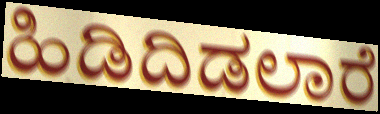
ಹಿಡಿದಿಡಲಾರೆ